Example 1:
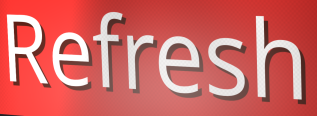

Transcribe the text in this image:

Refresh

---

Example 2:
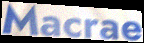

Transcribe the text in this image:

Macrae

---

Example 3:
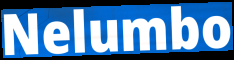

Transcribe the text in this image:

Nelumbo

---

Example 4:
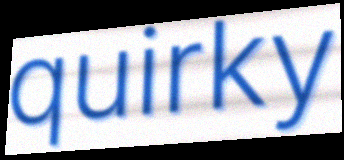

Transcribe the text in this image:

quirky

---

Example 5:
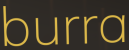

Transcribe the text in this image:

burra